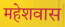
महेशवास